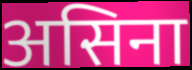
असिना